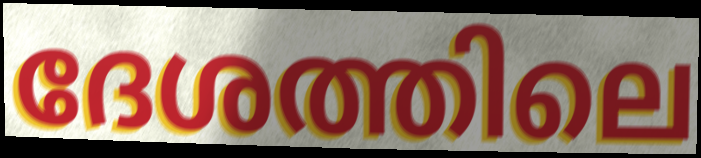
ദേശത്തിലെ